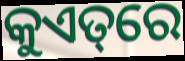
କୁଏତ୍‌ରେ